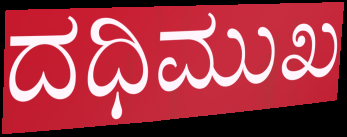
ದಧಿಮುಖ